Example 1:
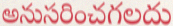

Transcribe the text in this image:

అనుసరించగలదు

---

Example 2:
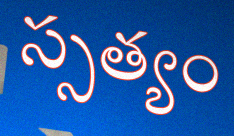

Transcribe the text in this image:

స్సత్యం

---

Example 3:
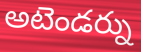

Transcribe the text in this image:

అటెండర్ను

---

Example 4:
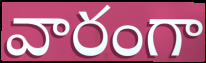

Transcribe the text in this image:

వారంగా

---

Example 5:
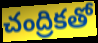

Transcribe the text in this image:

చంద్రికతో